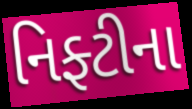
નિફ્ટીના